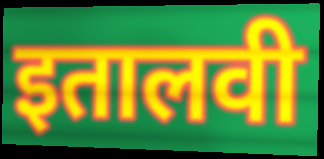
इतालवी